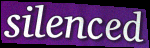
silenced